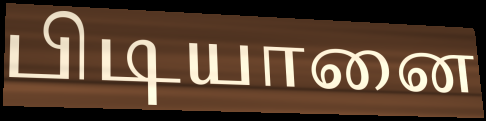
பிடியானை